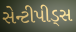
સેન્ટીપીડ્સ